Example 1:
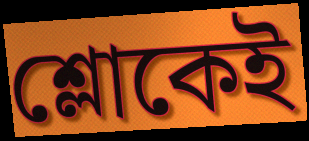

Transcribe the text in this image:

শ্লোকেই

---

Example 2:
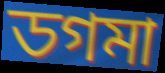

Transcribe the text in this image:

ডগমা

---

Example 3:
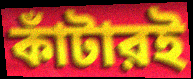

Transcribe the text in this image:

কাঁটারই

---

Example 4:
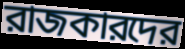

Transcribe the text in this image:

রাজকারদের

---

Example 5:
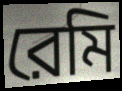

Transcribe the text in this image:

রেমি